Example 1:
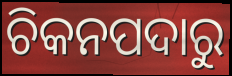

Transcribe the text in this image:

ଚିକନପଦାରୁ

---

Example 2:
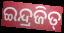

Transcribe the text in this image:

ଇନ୍ଦ୍ରଜିତ୍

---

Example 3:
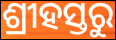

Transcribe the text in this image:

ଶ୍ରୀହସ୍ତରୁ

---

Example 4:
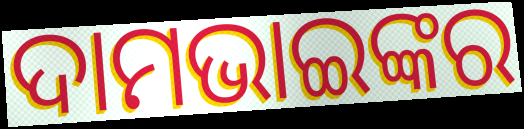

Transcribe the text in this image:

ଦାମଭାଇଙ୍କର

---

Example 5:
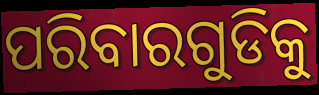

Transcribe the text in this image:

ପରିବାରଗୁଡିକୁ